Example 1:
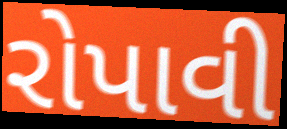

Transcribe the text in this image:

રોપાવી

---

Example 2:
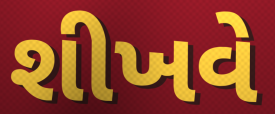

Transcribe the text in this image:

શીખવે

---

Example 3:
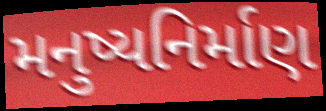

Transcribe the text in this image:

મનુષ્યનિર્માણ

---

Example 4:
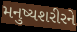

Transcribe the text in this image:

મનુષ્યશરીરને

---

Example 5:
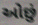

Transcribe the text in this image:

ઓછું